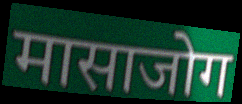
मासाजोग